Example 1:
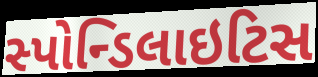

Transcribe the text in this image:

સ્પોન્ડિલાઇટિસ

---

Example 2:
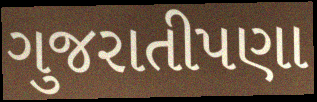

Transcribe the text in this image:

ગુજરાતીપણા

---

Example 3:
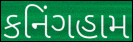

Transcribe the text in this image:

કનિંગહામ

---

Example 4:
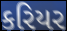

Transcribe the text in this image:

કરિયર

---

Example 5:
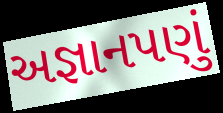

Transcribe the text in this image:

અજ્ઞાનપણું